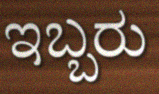
ಇಬ್ಬರು